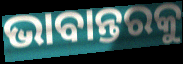
ଭାବାନ୍ତରକୁ